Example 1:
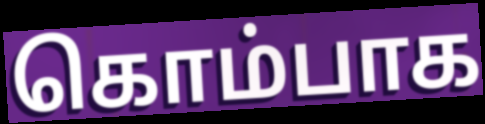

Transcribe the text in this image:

கொம்பாக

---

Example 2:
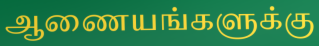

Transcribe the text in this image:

ஆணையங்களுக்கு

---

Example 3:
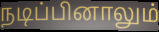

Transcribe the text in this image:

நடிப்பினாலும்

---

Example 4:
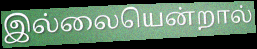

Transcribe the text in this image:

இல்லையென்றால்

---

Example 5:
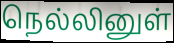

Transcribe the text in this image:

நெல்லினுள்